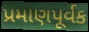
પ્રમાણપૂર્વક